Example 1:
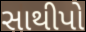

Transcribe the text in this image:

સાથીપો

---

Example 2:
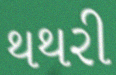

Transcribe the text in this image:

થથરી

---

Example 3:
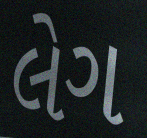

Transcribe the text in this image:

લેગ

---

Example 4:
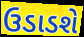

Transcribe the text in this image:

ઉડાડશે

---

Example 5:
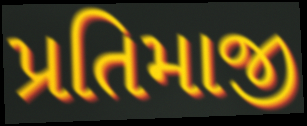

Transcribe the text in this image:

પ્રતિમાજી